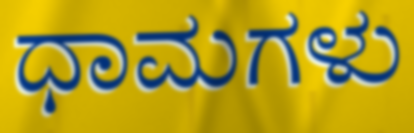
ಧಾಮಗಳು